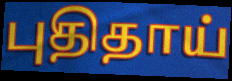
புதிதாய்